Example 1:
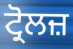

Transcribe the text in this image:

ਟ੍ਰੋਲਜ਼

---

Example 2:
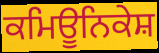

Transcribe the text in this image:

ਕਮਿਊਨਿਕੇਸ਼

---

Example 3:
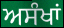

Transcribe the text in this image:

ਅਸੰਖਾਂ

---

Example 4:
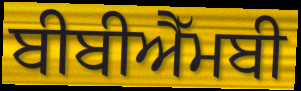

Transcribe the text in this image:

ਬੀਬੀਐੱਮਬੀ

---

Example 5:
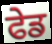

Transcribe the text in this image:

ਫੇਡ